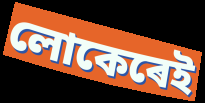
লোকেৰেই